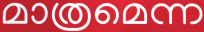
മാത്രമെന്ന